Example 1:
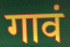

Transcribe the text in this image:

गावं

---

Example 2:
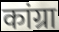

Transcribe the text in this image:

कांग्रा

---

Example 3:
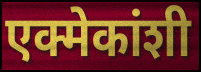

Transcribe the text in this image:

एक्मेकांशी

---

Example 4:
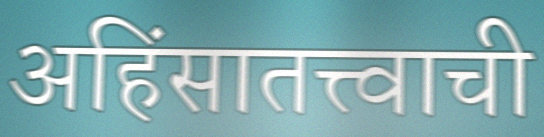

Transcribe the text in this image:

अहिंसातत्त्वाची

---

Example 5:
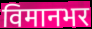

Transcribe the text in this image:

विमानभर